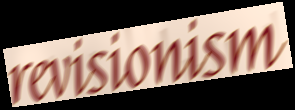
revisionism